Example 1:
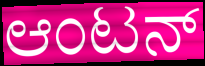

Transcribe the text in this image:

ಆಂಟನ್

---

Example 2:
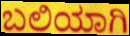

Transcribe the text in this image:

ಬಲಿಯಾಗಿ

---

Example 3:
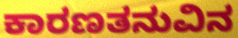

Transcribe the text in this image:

ಕಾರಣತನುವಿನ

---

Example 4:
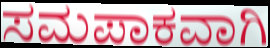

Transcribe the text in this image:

ಸಮಪಾಕವಾಗಿ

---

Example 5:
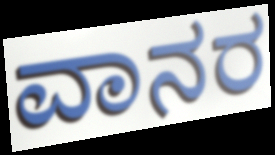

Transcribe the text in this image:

ವಾನರ